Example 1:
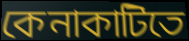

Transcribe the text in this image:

কেনাকাটিতে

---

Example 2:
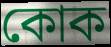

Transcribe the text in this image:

কোক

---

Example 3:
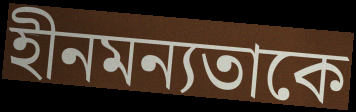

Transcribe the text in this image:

হীনমন্যতাকে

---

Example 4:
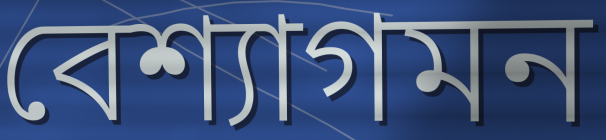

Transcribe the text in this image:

বেশ্যাগমন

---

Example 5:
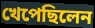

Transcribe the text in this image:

খেপেছিলেন